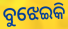
ବୁଝେଇକି